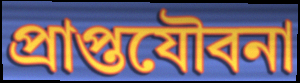
প্রাপ্তযৌবনা